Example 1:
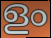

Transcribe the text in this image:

ളം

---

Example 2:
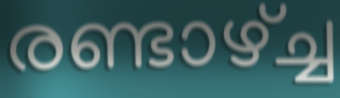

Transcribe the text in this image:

രണ്ടാഴ്ച്ച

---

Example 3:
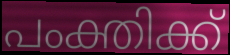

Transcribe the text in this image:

പംക്തിക്ക്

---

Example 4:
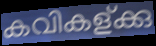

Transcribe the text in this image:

കവികള്ക്കു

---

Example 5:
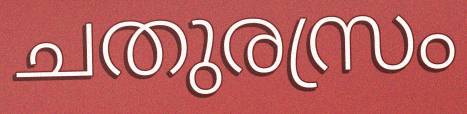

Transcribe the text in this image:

ചതുരസ്രം